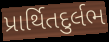
પ્રાર્થિતદુર્લભ